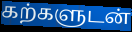
கற்களுடன்